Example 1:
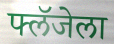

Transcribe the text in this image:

फ्लॅजेला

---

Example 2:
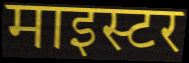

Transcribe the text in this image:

माइस्टर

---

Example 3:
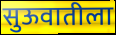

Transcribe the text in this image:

सुऊवातीला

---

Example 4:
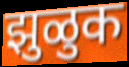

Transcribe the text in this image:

झुळुक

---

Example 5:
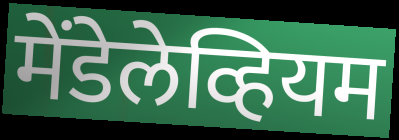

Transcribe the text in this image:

मेंडेलेव्हियम